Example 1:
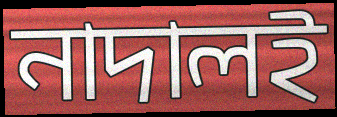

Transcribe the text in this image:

নাদালই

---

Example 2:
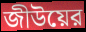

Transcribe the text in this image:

জীউয়ের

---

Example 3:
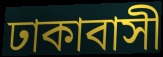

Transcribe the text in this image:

ঢাকাবাসী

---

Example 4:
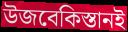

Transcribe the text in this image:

উজবেকিস্তানই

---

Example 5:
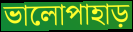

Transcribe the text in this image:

ভালোপাহাড়